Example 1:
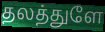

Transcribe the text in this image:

தலத்துளே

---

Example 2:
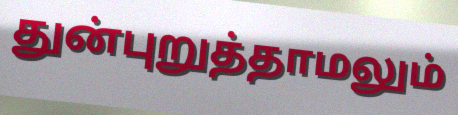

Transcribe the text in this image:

துன்புறுத்தாமலும்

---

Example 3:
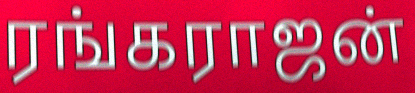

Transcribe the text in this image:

ரங்கராஜன்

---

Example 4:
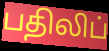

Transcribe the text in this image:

பதிலிப்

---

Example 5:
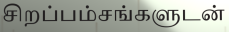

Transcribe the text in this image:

சிறப்பம்சங்களுடன்